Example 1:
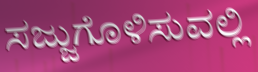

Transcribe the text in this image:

ಸಜ್ಜುಗೊಳಿಸುವಲ್ಲಿ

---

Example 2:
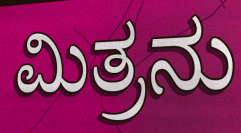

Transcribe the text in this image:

ಮಿತ್ರನು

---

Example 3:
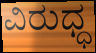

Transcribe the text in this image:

ವಿರುಧ್ಧ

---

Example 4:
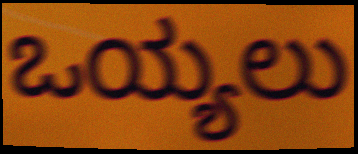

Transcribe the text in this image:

ಒಯ್ಯಲು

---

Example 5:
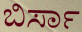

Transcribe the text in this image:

ಬಿರ್ಸಾ